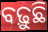
ବଢ଼ୁଛି